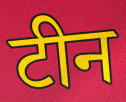
टीन